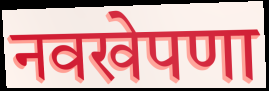
नवखेपणा